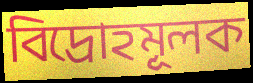
বিদ্রোহমূলক